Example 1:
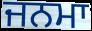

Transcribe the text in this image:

ਜਨਮਾ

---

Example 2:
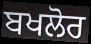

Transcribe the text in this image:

ਬਖਲੋਰ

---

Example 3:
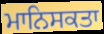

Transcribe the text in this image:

ਮਾਨਿਸਕਤਾ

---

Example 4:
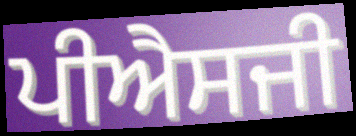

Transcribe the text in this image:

ਪੀਐਸਜੀ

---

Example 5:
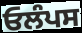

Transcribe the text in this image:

ਓਲੰਪਸ